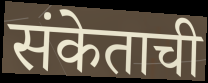
संकेताची